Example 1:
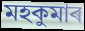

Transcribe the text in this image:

মহকুমাৰ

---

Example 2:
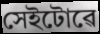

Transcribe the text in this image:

সেইটোৱে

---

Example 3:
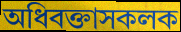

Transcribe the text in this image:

অধিবক্তাসকলক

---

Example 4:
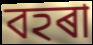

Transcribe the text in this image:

বহৰা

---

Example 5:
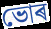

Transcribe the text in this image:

ভোৰ